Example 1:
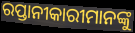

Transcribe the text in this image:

ରପ୍ତାନୀକାରୀମାନଙ୍କୁ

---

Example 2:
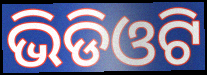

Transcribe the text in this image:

ଭିଡିଓଟି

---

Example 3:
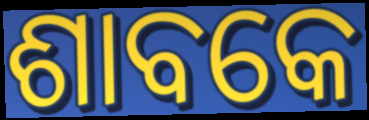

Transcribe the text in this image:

ଶାବକେ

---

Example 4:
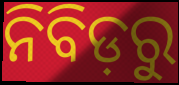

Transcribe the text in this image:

ନିବିଡ଼ରୁ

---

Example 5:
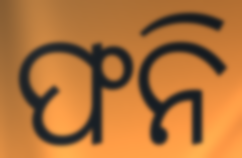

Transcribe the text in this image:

ଫନି